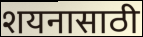
शयनासाठी